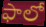
ఫాలో